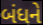
બંધને